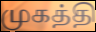
முகத்தி